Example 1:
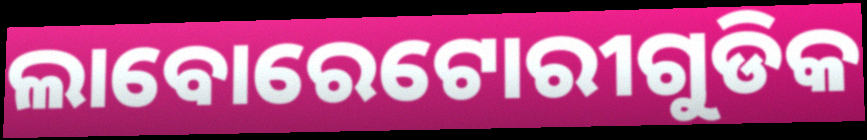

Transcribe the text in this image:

ଲାବୋରେଟୋରୀଗୁଡିକ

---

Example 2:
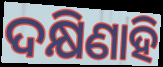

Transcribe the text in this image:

ଦକ୍ଷିଣାହି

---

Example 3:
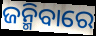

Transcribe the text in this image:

ଜନ୍ମିବାରେ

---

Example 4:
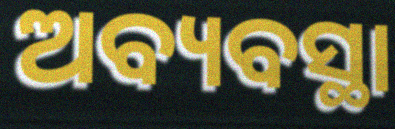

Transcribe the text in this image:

ଅବ୍ୟବସ୍ଥା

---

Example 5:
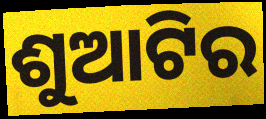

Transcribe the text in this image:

ଶୁଆଟିର